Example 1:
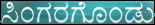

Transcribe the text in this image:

ಸಿಂಗರಗೊಂಡು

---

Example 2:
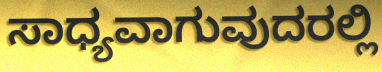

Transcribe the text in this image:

ಸಾಧ್ಯವಾಗುವುದರಲ್ಲಿ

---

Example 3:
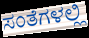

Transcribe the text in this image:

ಸಂತೆಗಳಲ್ಲಿ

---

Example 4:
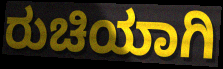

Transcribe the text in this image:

ರುಚಿಯಾಗಿ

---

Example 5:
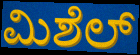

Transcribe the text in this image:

ಮಿಶೆಲ್